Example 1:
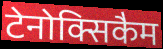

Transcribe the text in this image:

टेनोक्सिकैम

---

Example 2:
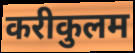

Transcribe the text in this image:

करीकुलम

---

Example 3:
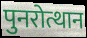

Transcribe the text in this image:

पुनरोत्थान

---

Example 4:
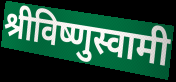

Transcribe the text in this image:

श्रीविष्णुस्वामी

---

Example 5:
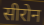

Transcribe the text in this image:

सीरोन